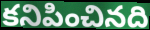
కనిపించినది